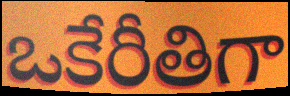
ఒకేరీతిగా